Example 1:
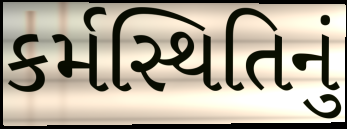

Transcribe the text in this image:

કર્મસ્થિતિનું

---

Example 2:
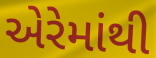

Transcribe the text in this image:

એરેમાંથી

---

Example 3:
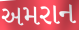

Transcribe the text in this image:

અમરાન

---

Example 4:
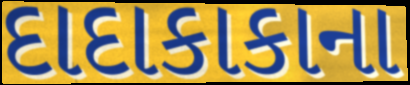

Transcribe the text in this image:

દાદાકાકાના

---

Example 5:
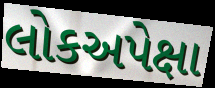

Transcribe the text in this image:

લોકઅપેક્ષા